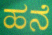
ಹನೆ